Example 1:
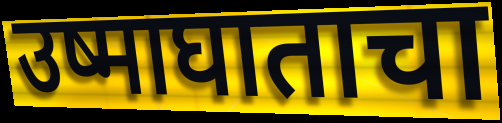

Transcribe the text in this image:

उष्माघाताचा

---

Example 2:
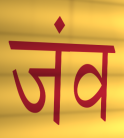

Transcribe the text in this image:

जंव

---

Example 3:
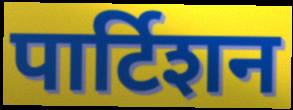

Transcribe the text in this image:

पार्टिशन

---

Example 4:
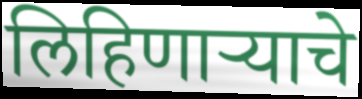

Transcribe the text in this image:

लिहिणाऱ्याचे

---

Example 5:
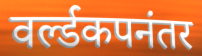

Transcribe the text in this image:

वर्ल्डकपनंतर